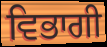
ਵਿਭਾਗੀ